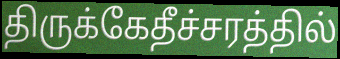
திருக்கேதீச்சரத்தில்